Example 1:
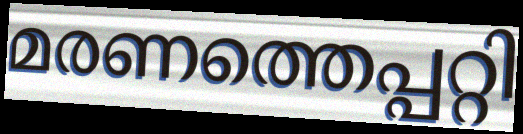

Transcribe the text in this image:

മരണത്തെപ്പറ്റി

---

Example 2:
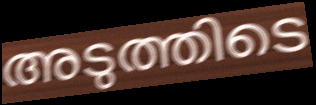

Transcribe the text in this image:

അടുത്തിടെ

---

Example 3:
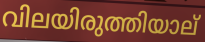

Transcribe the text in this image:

വിലയിരുത്തിയാല്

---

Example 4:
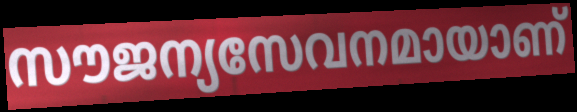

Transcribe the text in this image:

സൗജന്യസേവനമായാണ്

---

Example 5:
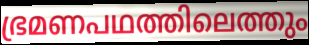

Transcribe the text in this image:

ഭ്രമണപഥത്തിലെത്തും